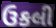
ઉકલી